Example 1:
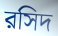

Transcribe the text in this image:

রসিদ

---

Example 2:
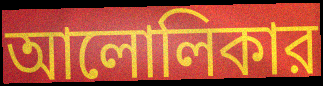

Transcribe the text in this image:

আলোলিকার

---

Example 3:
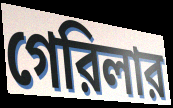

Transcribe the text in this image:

গেরিলার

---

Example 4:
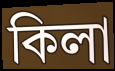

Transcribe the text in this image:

কিলা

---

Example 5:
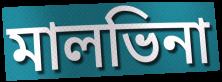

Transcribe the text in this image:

মালভিনা